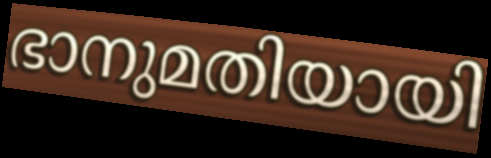
ഭാനുമതിയായി